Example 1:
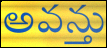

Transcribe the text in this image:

అవన్తు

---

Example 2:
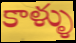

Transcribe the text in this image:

కాళ్ళు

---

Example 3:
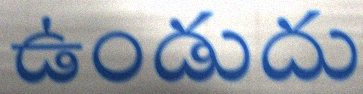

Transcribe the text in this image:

ఉండుదు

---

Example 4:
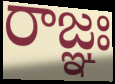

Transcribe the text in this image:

రాజ్ఞః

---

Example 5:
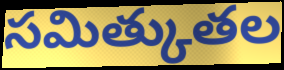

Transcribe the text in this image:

సమిత్కుతల